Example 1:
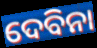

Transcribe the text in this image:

ଦେବିନା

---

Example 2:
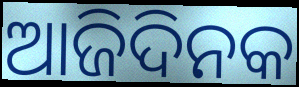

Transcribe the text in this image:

ଆଜିଦିନକ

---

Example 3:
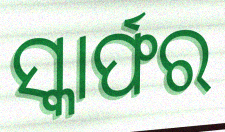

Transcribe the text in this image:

ସ୍କାର୍ଫର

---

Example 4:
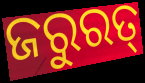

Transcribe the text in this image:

ଜରୁରତ୍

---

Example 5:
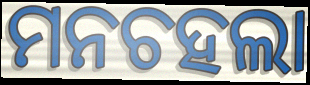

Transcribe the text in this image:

ମନଚହଲା